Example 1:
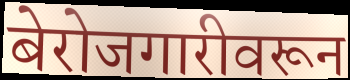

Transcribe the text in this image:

बेरोजगारीवरून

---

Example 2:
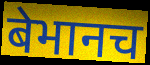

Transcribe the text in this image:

बेभानच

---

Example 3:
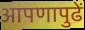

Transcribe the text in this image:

आपणापुढें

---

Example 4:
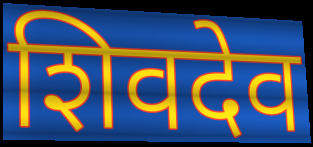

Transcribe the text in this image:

शिवदेव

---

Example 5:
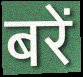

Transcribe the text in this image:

बरें